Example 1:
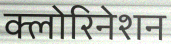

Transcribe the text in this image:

क्लोरिनेशन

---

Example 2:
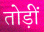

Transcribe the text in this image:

तोड़ीं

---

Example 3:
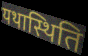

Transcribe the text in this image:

यथास्थिति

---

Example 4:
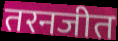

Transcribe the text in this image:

तरनजीत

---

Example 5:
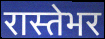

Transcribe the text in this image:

रास्तेभर